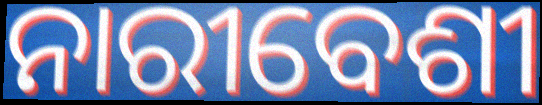
ନାରୀବେଶୀ